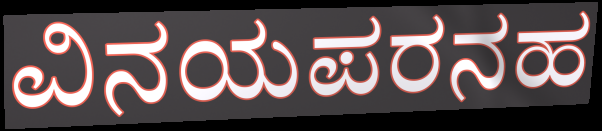
ವಿನಯಪರನಹ